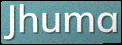
Jhuma